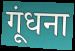
गूंधना